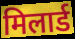
मिलार्ड